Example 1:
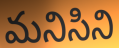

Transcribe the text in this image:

మనిసిని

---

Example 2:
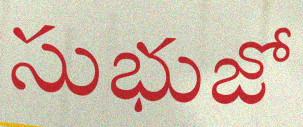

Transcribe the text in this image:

సుభుజో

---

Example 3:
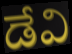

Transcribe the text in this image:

డేవి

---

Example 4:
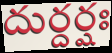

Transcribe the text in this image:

దుర్దర్షః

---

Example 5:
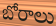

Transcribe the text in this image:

బోరాలు